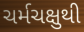
ચર્મચક્ષુથી